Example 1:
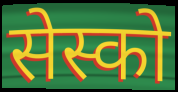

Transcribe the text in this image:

सेस्को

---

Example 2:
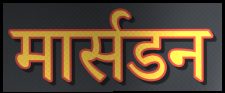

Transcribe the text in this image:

मार्सडन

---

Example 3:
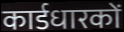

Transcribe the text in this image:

कार्डधारकों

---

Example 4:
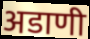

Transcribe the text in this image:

अडाणी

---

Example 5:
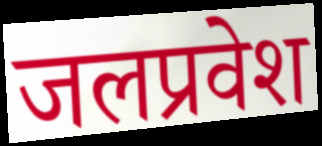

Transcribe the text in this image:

जलप्रवेश